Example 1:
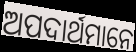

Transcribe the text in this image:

ଅପଦାର୍ଥମାନେ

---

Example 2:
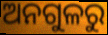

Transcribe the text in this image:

ଅନଗୁଳରୁ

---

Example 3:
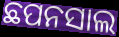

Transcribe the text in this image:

ଛପନସାଲ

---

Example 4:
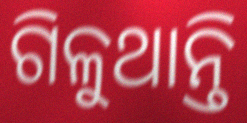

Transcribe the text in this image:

ଗିଳୁଥାନ୍ତି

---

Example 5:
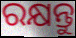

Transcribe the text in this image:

ରକ୍ଷନ୍ତୁ